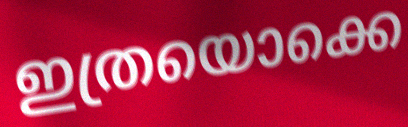
ഇത്രയൊക്കെ